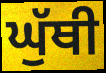
ਘੁੱਥੀ